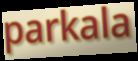
parkala